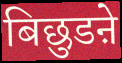
बिछुडऩे